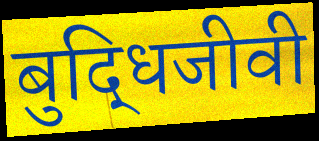
बुद्धिजीवी